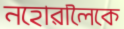
নহোৱালৈকে